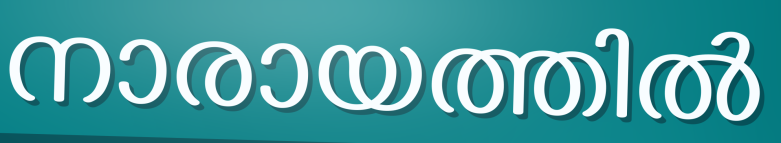
നാരായത്തിൽ